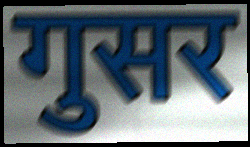
गुसर